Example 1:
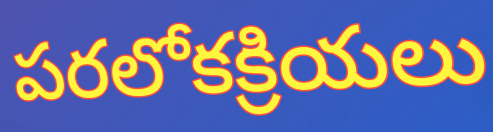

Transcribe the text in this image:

పరలోకక్రియలు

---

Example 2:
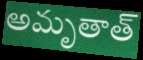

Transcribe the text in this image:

అమృతాత్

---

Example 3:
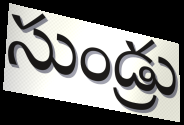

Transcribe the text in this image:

సుండ్రు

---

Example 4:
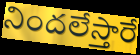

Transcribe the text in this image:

నిందలేస్తారే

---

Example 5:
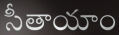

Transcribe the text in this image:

సీతాయాం